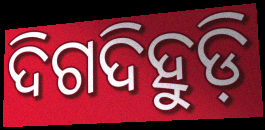
ଦିଗଦିହୁଡ଼ି